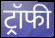
ट्रॉफी